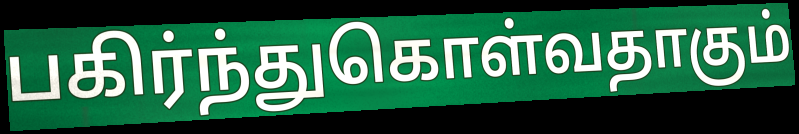
பகிர்ந்துகொள்வதாகும்